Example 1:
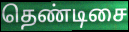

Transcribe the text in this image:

தெண்டிசை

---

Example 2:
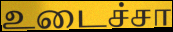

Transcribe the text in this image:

உடைச்சா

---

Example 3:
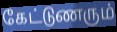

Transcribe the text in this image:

கேட்டுணரும்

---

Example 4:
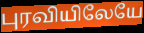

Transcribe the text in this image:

புரவியிலேயே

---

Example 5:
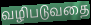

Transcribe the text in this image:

வழிபடுவதை